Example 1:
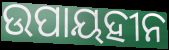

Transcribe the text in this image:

ଉପାୟହୀନ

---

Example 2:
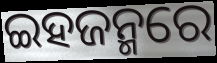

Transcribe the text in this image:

ଇହଜନ୍ମରେ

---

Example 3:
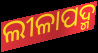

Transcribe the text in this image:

ଲୀଳାପଦ୍ମ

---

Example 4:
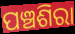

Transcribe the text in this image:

ପଞ୍ଚଶିରା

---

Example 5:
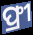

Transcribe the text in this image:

ଫ୍ରୀ